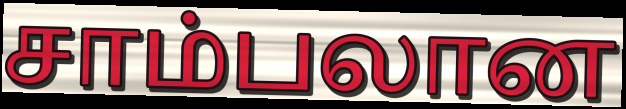
சாம்பலான